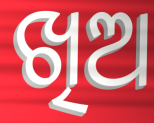
ଖିଅ